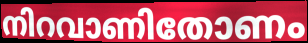
നിറവാണിതോണം